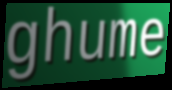
ghume